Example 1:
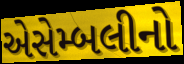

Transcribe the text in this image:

એસેમ્બલીનો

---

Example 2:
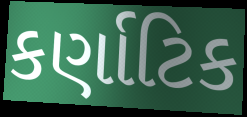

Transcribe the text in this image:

કર્ણાટિક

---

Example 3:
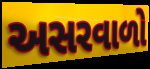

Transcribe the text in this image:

અસરવાળો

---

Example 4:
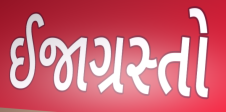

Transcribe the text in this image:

ઈજાગ્રસ્તો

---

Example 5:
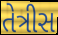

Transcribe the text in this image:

તેત્રીસ